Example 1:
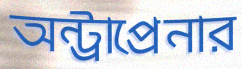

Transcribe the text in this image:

অন্ট্রাপ্রেনার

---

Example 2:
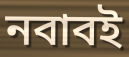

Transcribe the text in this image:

নবাবই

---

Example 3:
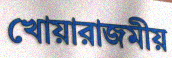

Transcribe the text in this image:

খোয়ারাজমীয়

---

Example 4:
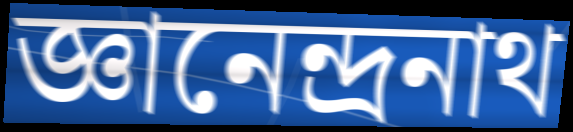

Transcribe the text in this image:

জ্ঞানেন্দ্রনাথ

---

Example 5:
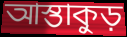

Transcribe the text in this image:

আস্তাকুড়